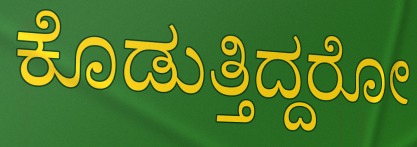
ಕೊಡುತ್ತಿದ್ದರೋ